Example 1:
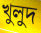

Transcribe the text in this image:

খুলুদ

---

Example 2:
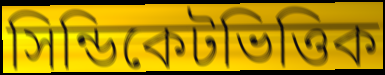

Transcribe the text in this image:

সিন্ডিকেটভিত্তিক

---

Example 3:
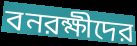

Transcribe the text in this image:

বনরক্ষীদের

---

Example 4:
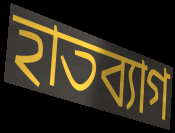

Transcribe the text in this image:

হাতব্যাগ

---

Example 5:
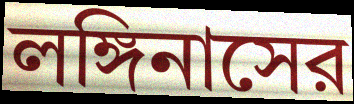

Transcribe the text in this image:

লঙ্গিনাসের